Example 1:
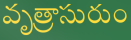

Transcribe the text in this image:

వృత్రాసురుం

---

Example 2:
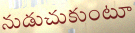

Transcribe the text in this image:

నుడుచుకుంటూ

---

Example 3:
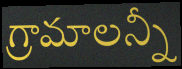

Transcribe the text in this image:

గ్రామాలన్నీ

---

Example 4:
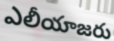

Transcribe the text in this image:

ఎలీయాజరు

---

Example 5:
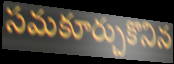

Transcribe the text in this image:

సమకూర్చుకొనిన